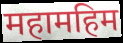
महामहिम